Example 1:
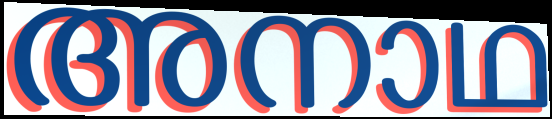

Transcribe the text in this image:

അനാഥ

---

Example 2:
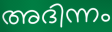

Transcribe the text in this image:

അദിന്നം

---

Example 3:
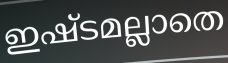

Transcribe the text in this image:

ഇഷ്ടമല്ലാതെ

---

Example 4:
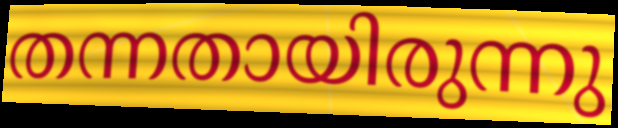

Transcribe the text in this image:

തന്നതായിരുന്നു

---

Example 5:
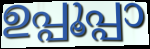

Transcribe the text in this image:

ഉപ്പൂപ്പാ